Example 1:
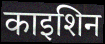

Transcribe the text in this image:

काइशिन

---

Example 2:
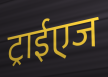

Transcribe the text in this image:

ट्राईएज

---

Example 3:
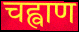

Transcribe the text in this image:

चह्वाण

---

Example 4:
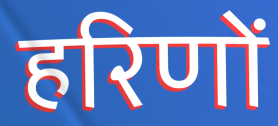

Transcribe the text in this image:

हरिणों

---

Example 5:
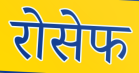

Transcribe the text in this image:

रोसेफ